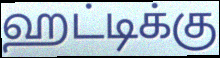
ஹட்டிக்கு